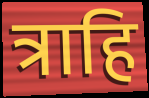
त्राहि